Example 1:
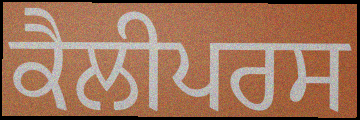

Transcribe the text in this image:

ਕੈਲੀਪਰਸ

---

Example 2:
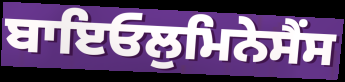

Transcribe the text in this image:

ਬਾਇਓਲੁਮਿਨੇਸੈਂਸ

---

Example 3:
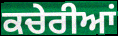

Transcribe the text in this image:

ਕਚੇਰੀਆਂ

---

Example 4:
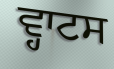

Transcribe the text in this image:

ਵ੍ਹਾਟਸ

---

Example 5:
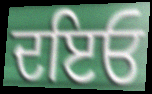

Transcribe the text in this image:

ਦਇਓ